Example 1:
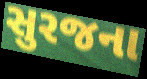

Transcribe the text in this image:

સુરજના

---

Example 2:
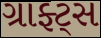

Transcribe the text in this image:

ગ્રાફ્ટ્સ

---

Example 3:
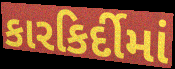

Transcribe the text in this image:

કારકિર્દીમાં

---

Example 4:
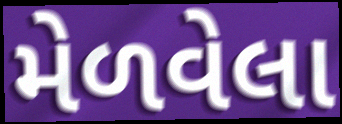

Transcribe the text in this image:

મેળવેલા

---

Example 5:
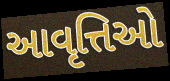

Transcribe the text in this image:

આવૃત્તિઓ